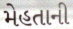
મેહતાની